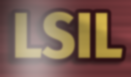
LSIL